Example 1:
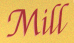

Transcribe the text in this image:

Mill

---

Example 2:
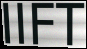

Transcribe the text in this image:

IIFT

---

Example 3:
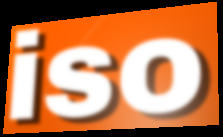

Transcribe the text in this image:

iso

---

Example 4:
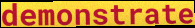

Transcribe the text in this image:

demonstrate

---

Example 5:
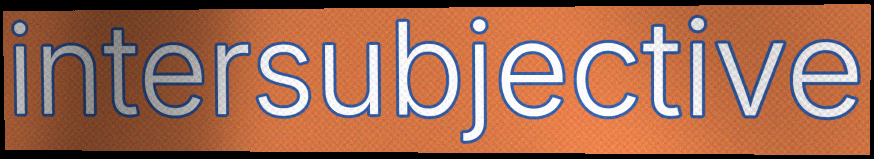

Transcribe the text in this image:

intersubjective